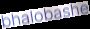
bhalobashe